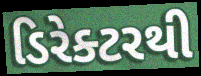
ડિરેક્ટરથી